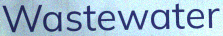
Wastewater